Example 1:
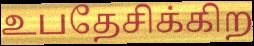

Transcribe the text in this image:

உபதேசிக்கிற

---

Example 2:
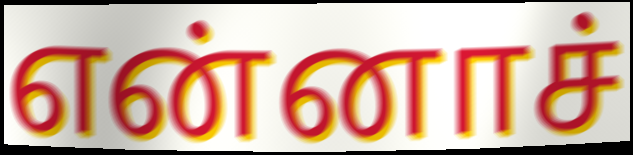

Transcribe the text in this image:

என்னாச்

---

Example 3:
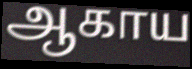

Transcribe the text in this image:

ஆகாய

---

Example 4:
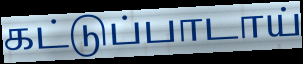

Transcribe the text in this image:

கட்டுப்பாடாய்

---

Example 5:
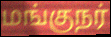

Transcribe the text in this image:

மங்குநர்